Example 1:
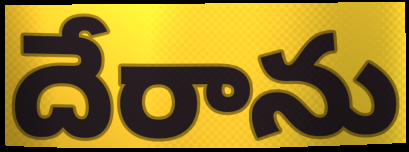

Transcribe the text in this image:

దేరాను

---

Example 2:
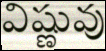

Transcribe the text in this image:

విష్ణువు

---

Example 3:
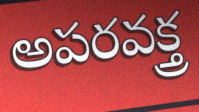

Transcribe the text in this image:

అపరవక్త్ర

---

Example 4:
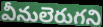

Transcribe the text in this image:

వీనులెరుగని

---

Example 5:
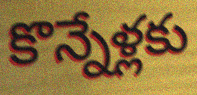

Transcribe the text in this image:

కొన్నేళ్లకు